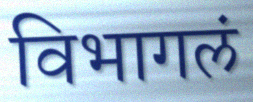
विभागलं